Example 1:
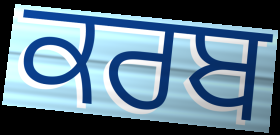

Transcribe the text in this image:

ਕਰਬ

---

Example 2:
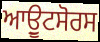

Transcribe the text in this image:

ਆਉੂਟਸੋਰਸ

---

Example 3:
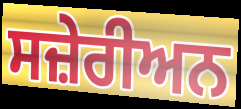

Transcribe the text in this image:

ਸਜ਼ੇਰੀਅਨ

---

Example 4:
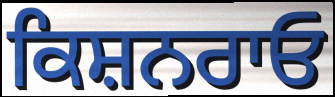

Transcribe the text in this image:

ਕਿਸ਼ਨਰਾਓ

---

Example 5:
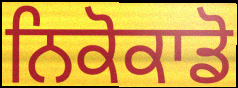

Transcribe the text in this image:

ਨਿਕੋਕਾਡੋ